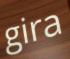
gira